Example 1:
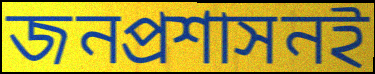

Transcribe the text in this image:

জনপ্রশাসনই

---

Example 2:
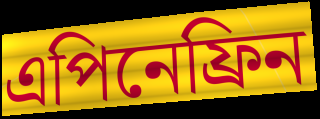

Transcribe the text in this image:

এপিনেফ্রিন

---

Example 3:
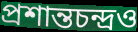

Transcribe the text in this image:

প্রশান্তচন্দ্রও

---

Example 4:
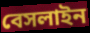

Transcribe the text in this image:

বেসলাইন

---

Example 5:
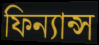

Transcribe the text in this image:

ফিন্যান্স